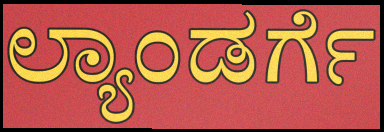
ಲ್ಯಾಂಡರ್ಗೆ